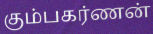
கும்பகர்ணன்